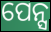
ପେନ୍ସ